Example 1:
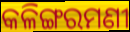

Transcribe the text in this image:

କଳିଙ୍ଗରମଣୀ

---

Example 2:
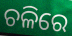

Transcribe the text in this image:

ଚଳିରେ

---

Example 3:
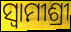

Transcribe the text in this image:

ସ୍ଵାମୀଶ୍ରୀ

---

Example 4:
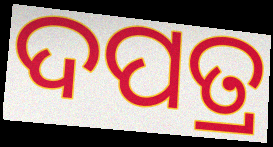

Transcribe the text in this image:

ଦପତ୍ର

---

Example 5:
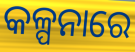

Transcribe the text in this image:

କଳ୍ପନାରେ